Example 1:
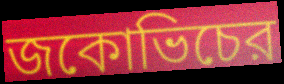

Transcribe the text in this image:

জকোভিচের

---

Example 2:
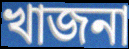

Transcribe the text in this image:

খাজনা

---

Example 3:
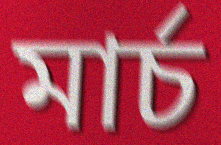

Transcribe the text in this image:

মার্চ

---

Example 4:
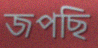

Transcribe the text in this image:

জপছি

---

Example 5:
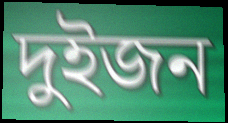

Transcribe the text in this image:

দুইজন